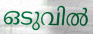
ഒടുവിൽ